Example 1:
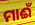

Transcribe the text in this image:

ମାଈଁ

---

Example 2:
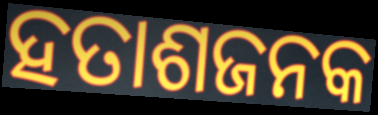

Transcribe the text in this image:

ହତାଶଜନକ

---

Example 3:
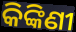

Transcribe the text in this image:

କିଙ୍କିଣୀ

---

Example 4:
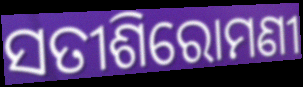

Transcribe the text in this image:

ସତୀଶିରୋମଣୀ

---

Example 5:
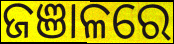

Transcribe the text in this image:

ଜଞାଳରେ